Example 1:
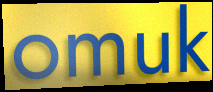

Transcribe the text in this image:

omuk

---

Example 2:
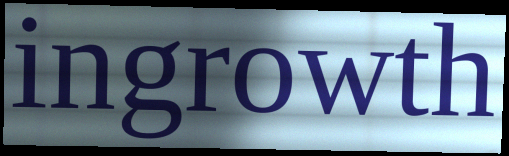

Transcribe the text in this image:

ingrowth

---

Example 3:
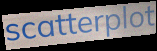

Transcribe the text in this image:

scatterplot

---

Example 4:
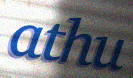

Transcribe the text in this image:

athu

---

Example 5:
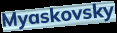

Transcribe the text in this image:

Myaskovsky